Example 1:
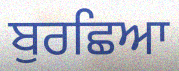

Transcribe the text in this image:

ਬੁਰਛਿਆ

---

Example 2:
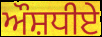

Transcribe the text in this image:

ਔਸ਼ਧੀਏ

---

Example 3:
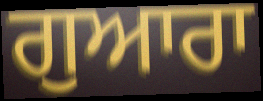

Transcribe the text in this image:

ਗੁਆਰਾ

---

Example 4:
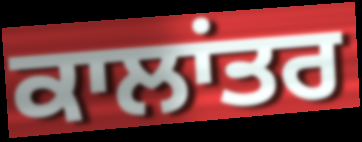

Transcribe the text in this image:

ਕਾਲਾਂਤਰ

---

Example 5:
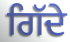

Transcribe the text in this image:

ਗਿੱਦੇ